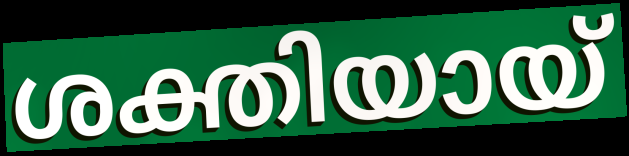
ശക്തിയായ്